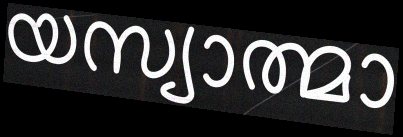
യസ്യാത്മാ